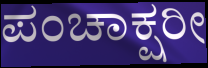
ಪಂಚಾಕ್ಷರೀ